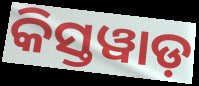
କିସ୍ତୱାଡ଼